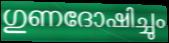
ഗുണദോഷിച്ചും